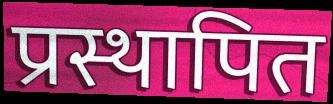
प्रस्थापित